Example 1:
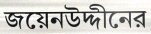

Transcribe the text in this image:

জয়েনউদ্দীনের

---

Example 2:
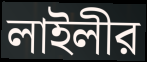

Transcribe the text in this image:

লাইলীর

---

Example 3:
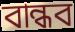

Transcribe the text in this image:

বান্ধব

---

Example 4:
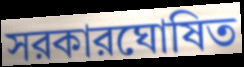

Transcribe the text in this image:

সরকারঘোষিত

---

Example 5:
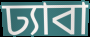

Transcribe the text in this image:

ঢ্যাবা